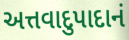
અત્તવાદુપાદાનં